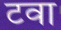
टवा